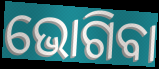
ଭୋଗିବା